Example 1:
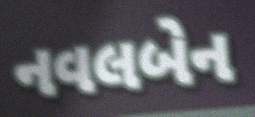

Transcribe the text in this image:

નવલબેન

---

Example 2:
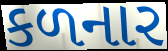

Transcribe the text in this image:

કળનાર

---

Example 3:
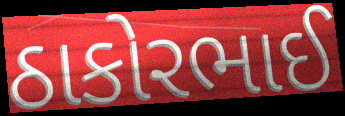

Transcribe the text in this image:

ઠાકોરભાઈ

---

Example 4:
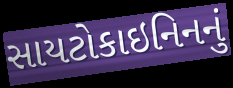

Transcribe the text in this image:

સાયટોકાઇનિનનું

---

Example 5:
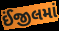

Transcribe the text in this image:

ઈંજીલમાં